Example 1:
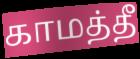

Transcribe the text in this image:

காமத்தீ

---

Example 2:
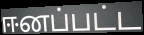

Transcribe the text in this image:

ஈனப்பட்ட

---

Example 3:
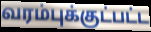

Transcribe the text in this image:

வரம்புக்குட்பட்ட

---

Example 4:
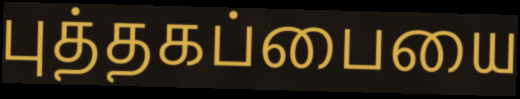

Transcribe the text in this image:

புத்தகப்பையை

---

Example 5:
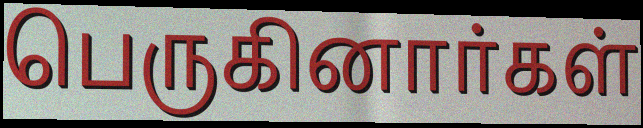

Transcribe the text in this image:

பெருகினார்கள்